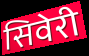
सिवेरी